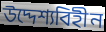
উদ্দেশ্যবিহীন